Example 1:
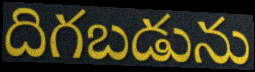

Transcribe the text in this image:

దిగబడును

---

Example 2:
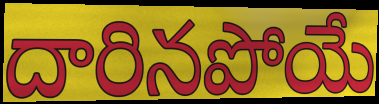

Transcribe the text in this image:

దారినపోయే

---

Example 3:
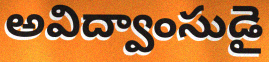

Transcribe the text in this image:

అవిద్వాంసుడై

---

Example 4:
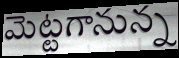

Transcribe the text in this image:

మెట్టగానున్న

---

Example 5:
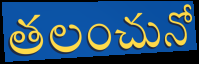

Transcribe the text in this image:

తలంచునో